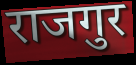
राजगुर